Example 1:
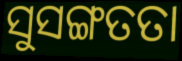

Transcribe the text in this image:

ସୁସଙ୍ଗତତା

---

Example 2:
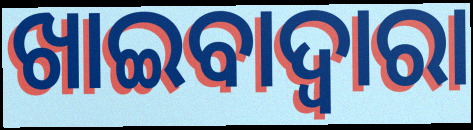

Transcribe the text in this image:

ଖାଇବାଦ୍ୱାରା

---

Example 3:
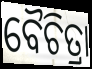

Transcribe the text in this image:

ବୈଚିତ୍ରା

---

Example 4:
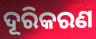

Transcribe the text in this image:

ଦୂରିକରଣ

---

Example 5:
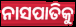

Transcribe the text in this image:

ନାସପାତିକୁ